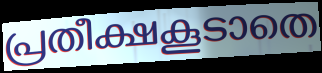
പ്രതീക്ഷകൂടാതെ